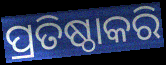
ପ୍ରତିଷ୍ଠାକରି